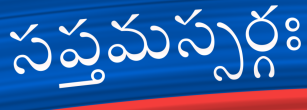
సప్తమస్సర్గః